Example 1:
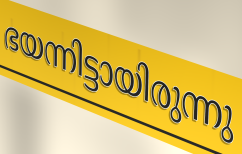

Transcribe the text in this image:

ഭയന്നിട്ടായിരുന്നു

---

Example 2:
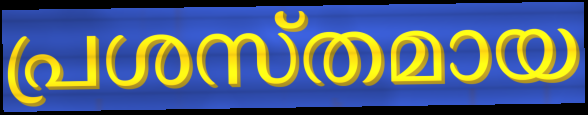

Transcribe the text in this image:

പ്രശസ്തമായ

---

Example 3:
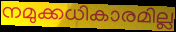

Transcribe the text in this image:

നമുക്കധികാരമില്ല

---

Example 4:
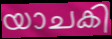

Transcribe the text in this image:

യാചകി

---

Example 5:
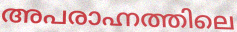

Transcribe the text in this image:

അപരാഹ്നത്തിലെ